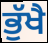
ਭੁੱਖੈ